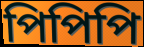
পিপিপি